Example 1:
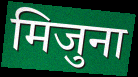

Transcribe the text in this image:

मिजुना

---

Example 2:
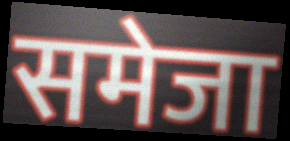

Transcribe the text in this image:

समेजा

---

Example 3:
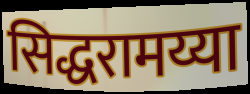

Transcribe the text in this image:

सिद्धरामय्या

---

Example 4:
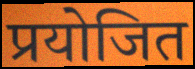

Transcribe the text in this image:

प्रयोजित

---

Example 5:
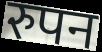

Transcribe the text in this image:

रुपन